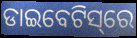
ଡାଇବେଟିସ୍‌ରେ